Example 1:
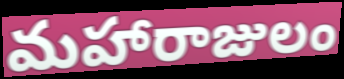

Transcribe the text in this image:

మహారాజులం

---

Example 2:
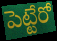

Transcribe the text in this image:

పెట్టేరో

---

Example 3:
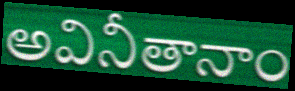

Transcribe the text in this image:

అవినీతానాం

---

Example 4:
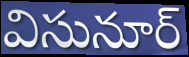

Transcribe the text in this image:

విసునూర్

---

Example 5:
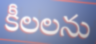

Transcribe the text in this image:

కీలలను